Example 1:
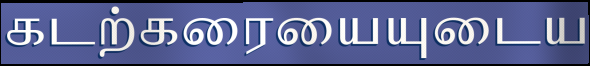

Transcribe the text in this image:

கடற்கரையையுடைய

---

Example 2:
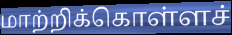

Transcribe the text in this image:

மாற்றிக்கொள்ளச்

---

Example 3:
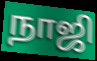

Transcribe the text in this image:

நாஜி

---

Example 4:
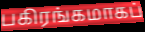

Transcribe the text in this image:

பகிரங்கமாகப்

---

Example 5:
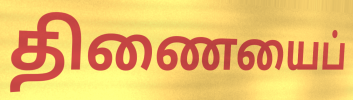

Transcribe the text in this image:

திணையைப்